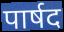
पार्षद